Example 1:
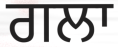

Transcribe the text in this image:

ਗਲਾ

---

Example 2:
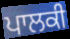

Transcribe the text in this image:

ਪਾਲਕੀ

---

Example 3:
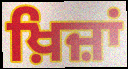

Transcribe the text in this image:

ਖ਼ਿਜ਼ਾਂ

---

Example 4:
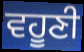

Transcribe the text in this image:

ਵਹੂਣੀ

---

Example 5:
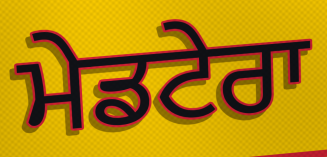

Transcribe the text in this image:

ਮੇਡਟੇਰਾ